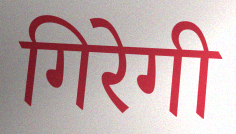
गिरेगी